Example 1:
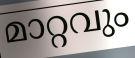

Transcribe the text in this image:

മാറ്റവും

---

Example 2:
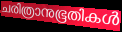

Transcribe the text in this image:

ചരിത്രാനുഭൂതികൾ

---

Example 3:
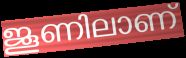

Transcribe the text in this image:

ജൂണിലാണ്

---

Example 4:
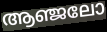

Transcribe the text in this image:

ആഞ്ജലോ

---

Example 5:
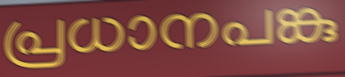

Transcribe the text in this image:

പ്രധാനപങ്കു